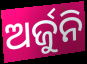
ଅର୍ଜୁନି